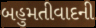
બહુમતીવાદની